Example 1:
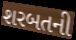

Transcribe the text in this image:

શરબતની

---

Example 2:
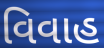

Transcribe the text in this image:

વિવાહ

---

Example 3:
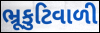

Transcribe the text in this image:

ભ્રૂકુટિવાળી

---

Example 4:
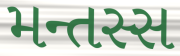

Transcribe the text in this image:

મન્તસ્સ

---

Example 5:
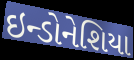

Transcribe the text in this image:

ઇન્ડોનેશિયા